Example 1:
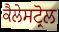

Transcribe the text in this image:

ਕੈਲੇਸਟ੍ਰੋਲ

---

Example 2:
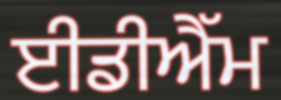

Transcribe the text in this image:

ਈਡੀਐੱਮ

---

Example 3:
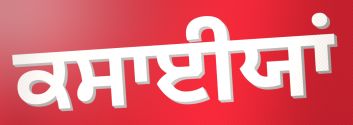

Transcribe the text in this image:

ਕਸਾਈਯਾਂ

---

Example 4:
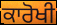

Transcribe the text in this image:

ਕਾਰੋਖੀ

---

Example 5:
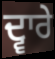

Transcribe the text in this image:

ਦ੍ਵਾਰੇ